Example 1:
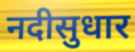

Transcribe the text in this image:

नदीसुधार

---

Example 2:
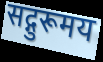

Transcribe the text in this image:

सद्गुरूमय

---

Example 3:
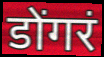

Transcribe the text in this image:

डोंगरं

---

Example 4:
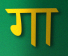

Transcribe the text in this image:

गा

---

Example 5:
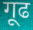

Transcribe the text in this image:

गूढ